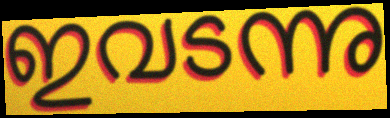
ഇവടന്നു